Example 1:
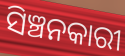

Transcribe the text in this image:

ସିଞ୍ଚନକାରୀ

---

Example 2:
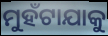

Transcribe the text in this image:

ମୁହଁଟାଯାକୁ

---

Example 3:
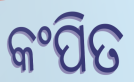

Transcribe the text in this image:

କଂପିତ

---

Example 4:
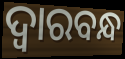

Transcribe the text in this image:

ଦ୍ବାରବନ୍ଧ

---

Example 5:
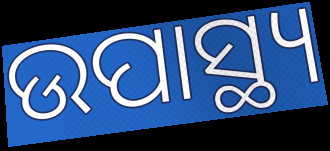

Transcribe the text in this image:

ଉପାସ୍ଥ୍ୟ